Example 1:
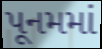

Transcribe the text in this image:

પૂનમમાં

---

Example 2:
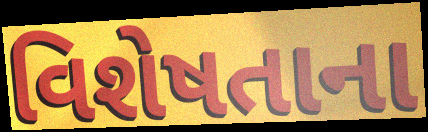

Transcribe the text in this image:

વિશેષતાના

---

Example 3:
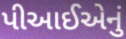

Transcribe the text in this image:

પીઆઈએનું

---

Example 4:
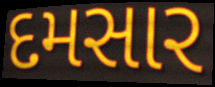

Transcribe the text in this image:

દમસાર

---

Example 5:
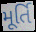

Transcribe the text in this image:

મૂર્તિ